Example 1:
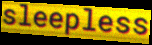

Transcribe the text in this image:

sleepless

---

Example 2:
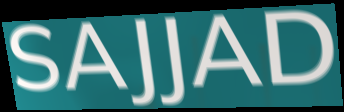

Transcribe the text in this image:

SAJJAD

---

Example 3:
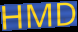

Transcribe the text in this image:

HMD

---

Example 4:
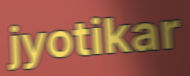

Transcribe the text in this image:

jyotikar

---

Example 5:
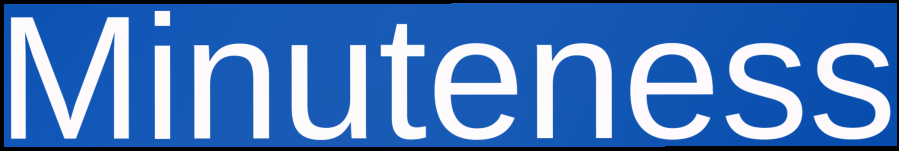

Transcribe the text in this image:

Minuteness